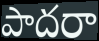
పాదరా